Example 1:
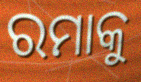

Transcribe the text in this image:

ରମାକୁ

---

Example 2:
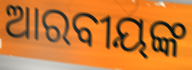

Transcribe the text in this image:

ଆରବୀୟଙ୍କ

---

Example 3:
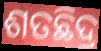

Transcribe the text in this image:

ଶତଛିଦ୍ର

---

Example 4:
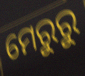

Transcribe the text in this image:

ମେରୁରୁ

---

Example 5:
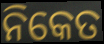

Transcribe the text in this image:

ନିକେତ